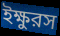
ইক্ষুরস